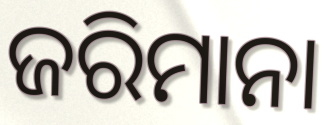
ଜରିମାନା